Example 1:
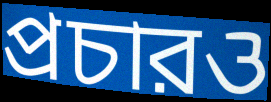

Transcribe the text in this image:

প্রচারও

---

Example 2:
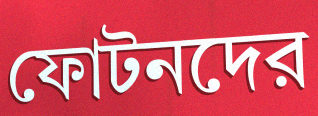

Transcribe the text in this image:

ফোটনদের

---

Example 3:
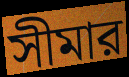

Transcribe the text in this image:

সীমার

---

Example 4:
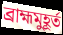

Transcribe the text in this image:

ব্রাহ্মমুহূর্ত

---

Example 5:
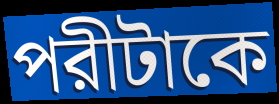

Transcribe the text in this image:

পরীটাকে